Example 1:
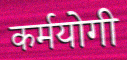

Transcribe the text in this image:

कर्मयोगी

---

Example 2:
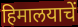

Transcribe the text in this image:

हिमालयाचें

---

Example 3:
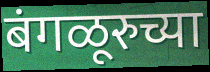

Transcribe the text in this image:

बंगळूरुच्या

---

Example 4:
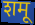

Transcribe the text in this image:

शमू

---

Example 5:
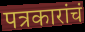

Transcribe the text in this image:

पत्रकारांचं